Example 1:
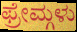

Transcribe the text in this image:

ಫ್ರೇಮ್ಗಳು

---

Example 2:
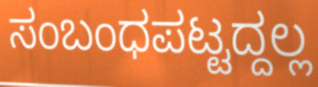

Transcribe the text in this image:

ಸಂಬಂಧಪಟ್ಟದ್ದಲ್ಲ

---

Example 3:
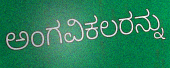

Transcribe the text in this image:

ಅಂಗವಿಕಲರನ್ನು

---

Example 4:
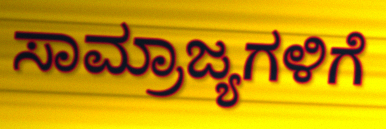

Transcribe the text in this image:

ಸಾಮ್ರಾಜ್ಯಗಳಿಗೆ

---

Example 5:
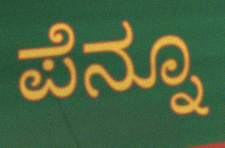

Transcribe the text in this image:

ಪೆನ್ನೂ